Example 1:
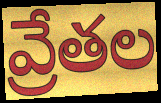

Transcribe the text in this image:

వ్రేతల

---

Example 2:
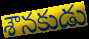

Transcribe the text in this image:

శౌనకుడు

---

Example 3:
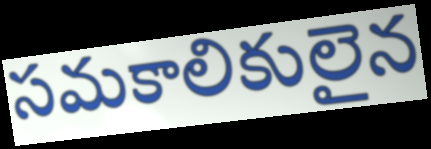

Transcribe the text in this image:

సమకాలికులైన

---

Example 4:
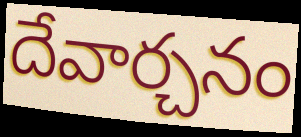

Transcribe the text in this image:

దేవార్చనం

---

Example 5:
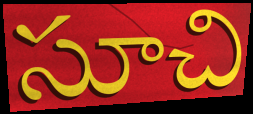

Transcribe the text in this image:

సూచి